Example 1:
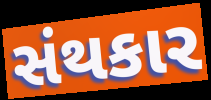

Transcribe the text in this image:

સંથકાર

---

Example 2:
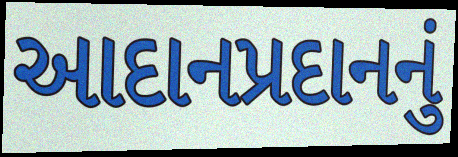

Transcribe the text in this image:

આદાનપ્રદાનનું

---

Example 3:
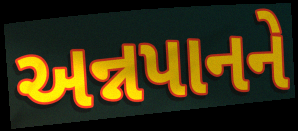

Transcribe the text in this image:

અન્નપાનને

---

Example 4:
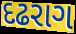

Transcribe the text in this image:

દઢરાગ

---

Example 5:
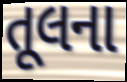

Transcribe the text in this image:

તૂલના